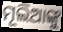
ମୂଲିଆଙ୍କୁ